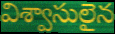
విశ్వాసులైన